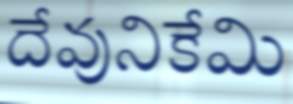
దేవునికేమి